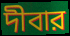
দীবার